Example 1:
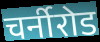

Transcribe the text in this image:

चर्नीरोड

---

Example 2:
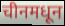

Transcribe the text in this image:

चीनमधून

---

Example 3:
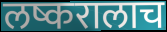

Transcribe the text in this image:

लष्करालाच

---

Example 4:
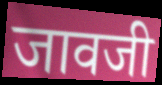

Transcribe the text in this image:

जावजी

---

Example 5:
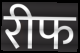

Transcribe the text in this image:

रीफ